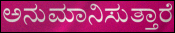
ಅನುಮಾನಿಸುತ್ತಾರೆ